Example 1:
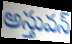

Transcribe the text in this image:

అస్తువన్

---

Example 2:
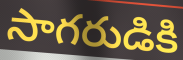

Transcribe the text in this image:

సాగరుడికి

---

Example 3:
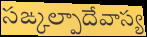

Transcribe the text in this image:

సఙ్కల్పాదేవాస్య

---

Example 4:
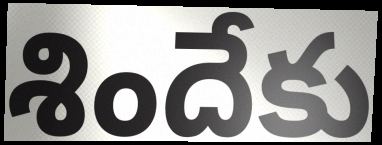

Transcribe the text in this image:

శిందేకు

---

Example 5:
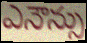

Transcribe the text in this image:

ఎనౌన్సు